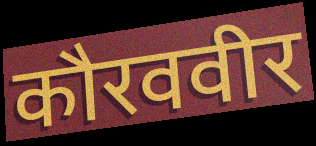
कौरववीर